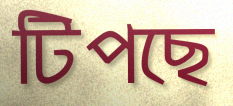
টিপছে